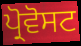
ਪ੍ਰੋਵੋਸਟ